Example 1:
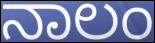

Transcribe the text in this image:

ನಾಲಂ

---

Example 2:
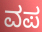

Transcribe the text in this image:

ವಪ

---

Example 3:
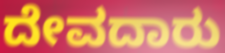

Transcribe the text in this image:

ದೇವದಾರು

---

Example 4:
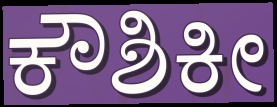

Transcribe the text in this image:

ಕೌಶಿಕೀ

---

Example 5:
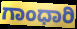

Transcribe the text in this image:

ಗಾಂಧಾರಿ